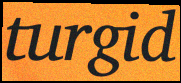
turgid